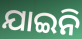
ଯାଇନି